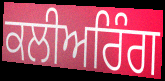
ਕਲੀਅਰਿੰਗ